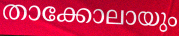
താക്കോലായും